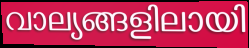
വാല്യങ്ങളിലായി